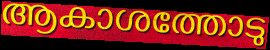
ആകാശത്തോടു